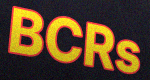
BCRs